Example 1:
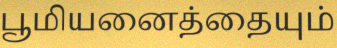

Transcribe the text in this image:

பூமியனைத்தையும்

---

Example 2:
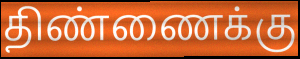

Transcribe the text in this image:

திண்ணைக்கு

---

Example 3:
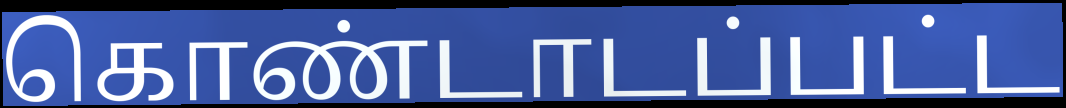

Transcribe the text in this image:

கொண்டாடப்பட்ட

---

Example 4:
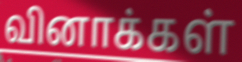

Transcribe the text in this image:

வினாக்கள்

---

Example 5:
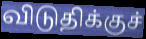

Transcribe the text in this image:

விடுதிக்குச்